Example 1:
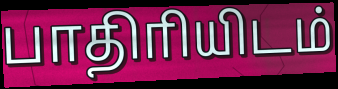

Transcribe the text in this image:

பாதிரியிடம்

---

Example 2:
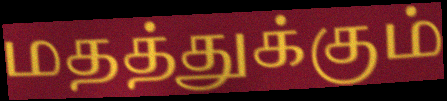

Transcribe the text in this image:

மதத்துக்கும்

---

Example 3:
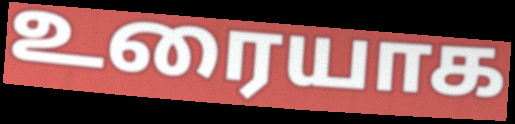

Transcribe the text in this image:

உரையாக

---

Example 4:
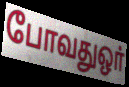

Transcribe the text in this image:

போவதுஒர்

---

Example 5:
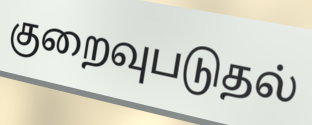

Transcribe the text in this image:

குறைவுபடுதல்